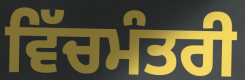
ਵਿੱਚਮੰਤਰੀ